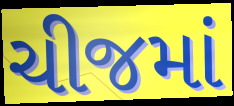
ચીજમાં